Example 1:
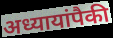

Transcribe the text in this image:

अध्यायांपैकी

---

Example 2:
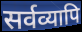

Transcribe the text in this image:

सर्वव्यापि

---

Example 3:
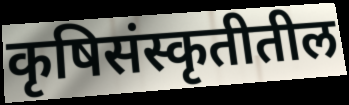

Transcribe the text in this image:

कृषिसंस्कृतीतील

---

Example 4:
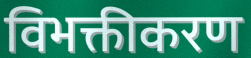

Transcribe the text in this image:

विभक्तीकरण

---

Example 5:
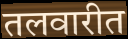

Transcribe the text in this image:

तलवारीत